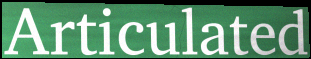
Articulated